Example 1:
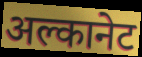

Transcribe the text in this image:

अल्कानेट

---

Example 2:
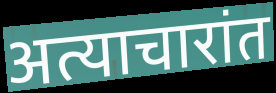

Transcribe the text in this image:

अत्याचारांत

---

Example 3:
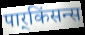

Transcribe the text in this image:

पार्किंसन्स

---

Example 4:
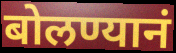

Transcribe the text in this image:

बोलण्यानं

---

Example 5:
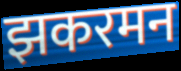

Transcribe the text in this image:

झकरमन